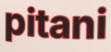
pitani